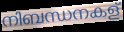
നിബന്ധനകള്